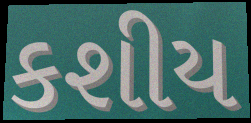
કશીય